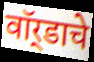
वॉर्डाचे